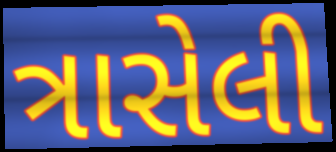
ત્રાસેલી